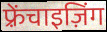
फ़्रेंचाइज़िंग